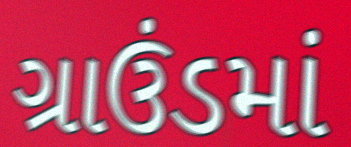
ગ્રાઉંડમાં